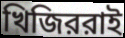
খিজিররাই